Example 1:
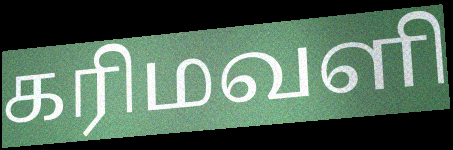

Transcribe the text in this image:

கரிமவளி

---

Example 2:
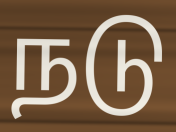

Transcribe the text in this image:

நடு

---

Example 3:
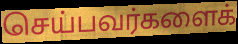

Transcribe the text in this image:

செய்பவர்களைக்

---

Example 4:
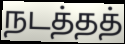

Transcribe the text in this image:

நடத்தத்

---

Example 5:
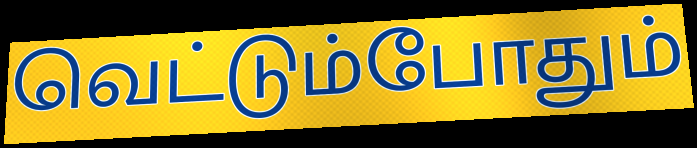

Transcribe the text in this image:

வெட்டும்போதும்